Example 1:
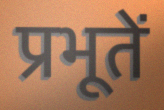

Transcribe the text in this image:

प्रभूतें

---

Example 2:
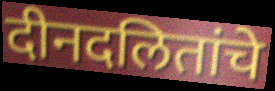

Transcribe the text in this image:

दीनदलितांचे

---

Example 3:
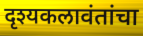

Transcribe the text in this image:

दृश्यकलावंतांचा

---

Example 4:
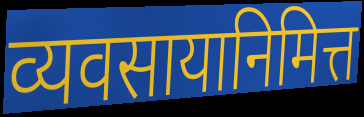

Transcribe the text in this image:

व्यवसायानिमित्त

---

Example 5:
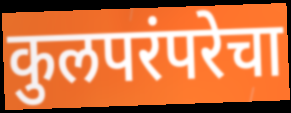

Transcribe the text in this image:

कुलपरंपरेचा